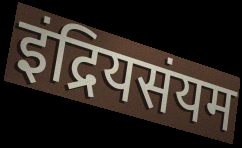
इंद्रियसंयम